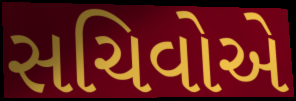
સચિવોએ